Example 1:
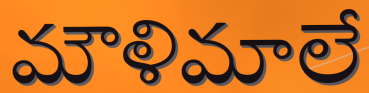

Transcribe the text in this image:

మౌళిమాలే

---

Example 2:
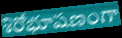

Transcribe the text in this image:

శిరోభూషణంగా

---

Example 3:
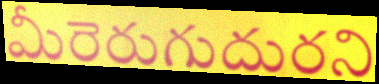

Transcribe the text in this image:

మీరెరుగుదురని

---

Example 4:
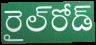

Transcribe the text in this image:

రైల్‌రోడ్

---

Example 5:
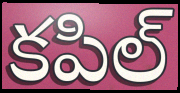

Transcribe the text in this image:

కపిల్